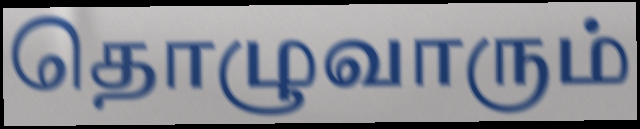
தொழுவாரும்